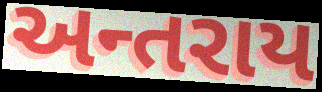
અન્તરાય